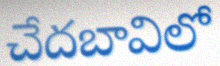
చేదబావిలో